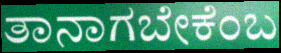
ತಾನಾಗಬೇಕೆಂಬ